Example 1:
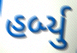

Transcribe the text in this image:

હર્બ્યુ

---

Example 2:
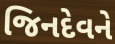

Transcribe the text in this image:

જિનદેવને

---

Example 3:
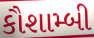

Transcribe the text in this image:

કૌશામ્બી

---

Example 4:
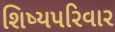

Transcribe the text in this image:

શિષ્યપરિવાર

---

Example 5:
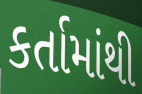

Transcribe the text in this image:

કર્તામાંથી